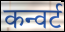
कन्वर्ट